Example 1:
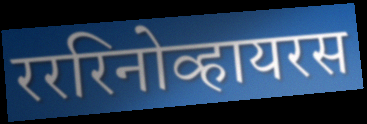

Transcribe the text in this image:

रररिनोव्हायरस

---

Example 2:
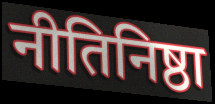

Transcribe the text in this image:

नीतिनिष्ठा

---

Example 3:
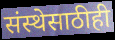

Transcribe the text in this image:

संस्थेसाठीही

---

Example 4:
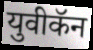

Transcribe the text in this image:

युवीकॅन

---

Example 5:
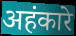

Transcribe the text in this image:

अहंकारे